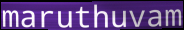
maruthuvam